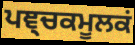
ਪਞ੍ਚਕਮੂਲਕਂ